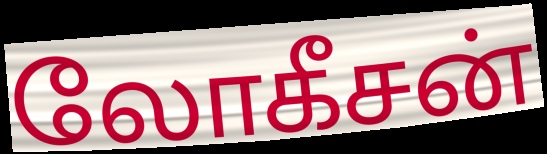
லோகீசன்